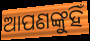
ଆପଣଙ୍କୁହିଁ